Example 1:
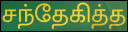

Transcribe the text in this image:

சந்தேகித்த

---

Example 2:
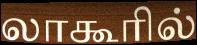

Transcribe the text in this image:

லாகூரில்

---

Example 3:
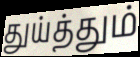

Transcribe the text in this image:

துய்த்தும்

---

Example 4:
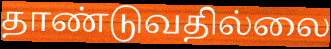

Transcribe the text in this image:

தாண்டுவதில்லை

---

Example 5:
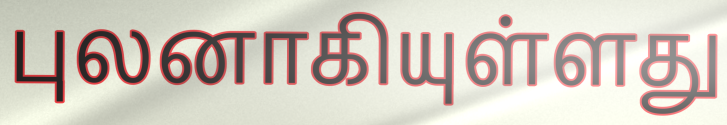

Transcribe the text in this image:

புலனாகியுள்ளது